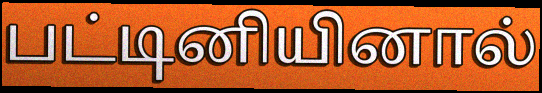
பட்டினியினால்